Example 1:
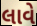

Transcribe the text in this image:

લાવે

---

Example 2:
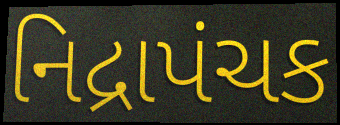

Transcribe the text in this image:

નિદ્રાપંચક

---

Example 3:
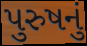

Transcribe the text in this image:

પુરુષનું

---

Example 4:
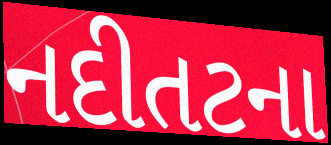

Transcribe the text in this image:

નદીતટના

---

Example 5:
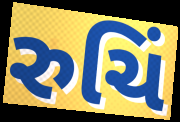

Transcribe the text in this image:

રુચિં